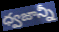
ధ్వజాన్నీ